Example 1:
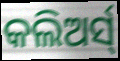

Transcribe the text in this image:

କଲିଅର୍ସ୍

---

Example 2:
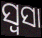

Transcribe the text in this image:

ସ୍ୱସା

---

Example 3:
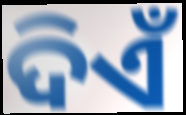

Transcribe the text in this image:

ଦିଏଁ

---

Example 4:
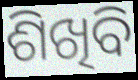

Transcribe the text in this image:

ଶିଖିବି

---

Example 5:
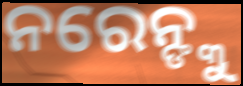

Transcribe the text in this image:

ନରେନ୍ଙ୍କୁ